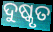
ଦୁଷ୍କୃତ